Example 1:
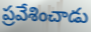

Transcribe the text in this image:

ప్రవేశించాడు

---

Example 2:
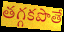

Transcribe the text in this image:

తగ్గకపొతే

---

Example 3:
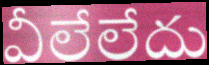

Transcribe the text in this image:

వీలేలేదు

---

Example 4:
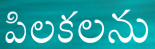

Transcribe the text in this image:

పిలకలను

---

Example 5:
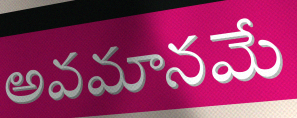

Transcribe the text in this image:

అవమానమే